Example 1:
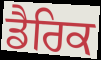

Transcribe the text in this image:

ਡੈਰਿਕ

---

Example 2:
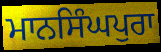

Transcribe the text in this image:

ਮਾਨਸਿੰਘਪੁਰਾ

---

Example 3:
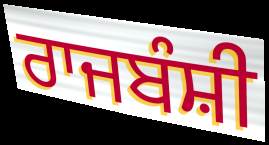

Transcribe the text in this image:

ਰਾਜਬੰਸ਼ੀ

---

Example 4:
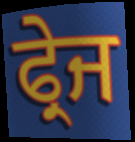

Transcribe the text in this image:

ਫ੍ਰੇਜ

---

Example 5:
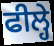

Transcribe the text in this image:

ਫੀਲ੍ਹੇ